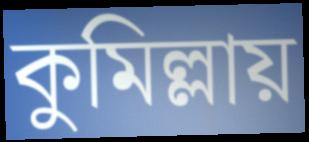
কুমিল্লায়